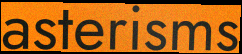
asterisms